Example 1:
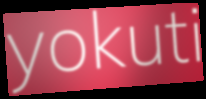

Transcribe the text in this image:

yokuti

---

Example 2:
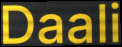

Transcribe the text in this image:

Daali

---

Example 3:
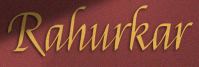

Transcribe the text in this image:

Rahurkar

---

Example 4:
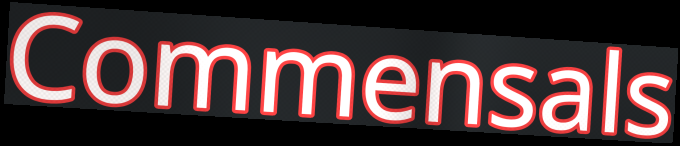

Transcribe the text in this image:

Commensals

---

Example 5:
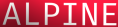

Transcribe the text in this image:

ALPINE